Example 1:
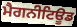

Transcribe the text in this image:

ਮੈਗਨੀਟਿਊਡ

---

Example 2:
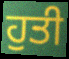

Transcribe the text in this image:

ਹੁਤੀ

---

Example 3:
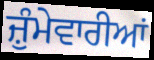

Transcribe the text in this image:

ਜ਼ੁੰਮੇਵਾਰੀਆਂ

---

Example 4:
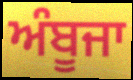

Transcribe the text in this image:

ਅੰਬੂਜਾ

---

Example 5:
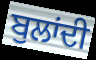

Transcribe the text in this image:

ਬੁਲਾਂਦੀ